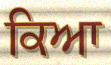
ਕਿਆ